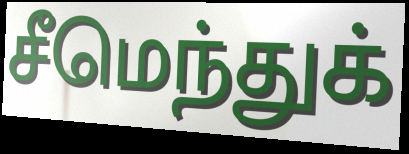
சீமெந்துக்